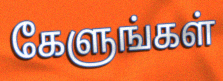
கேளுங்கள்